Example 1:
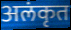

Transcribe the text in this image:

अलंकृत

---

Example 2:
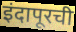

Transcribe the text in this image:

इंदापूरची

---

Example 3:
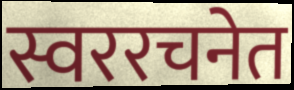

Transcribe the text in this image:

स्वररचनेत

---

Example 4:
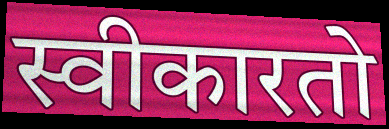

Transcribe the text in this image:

स्वीकारतो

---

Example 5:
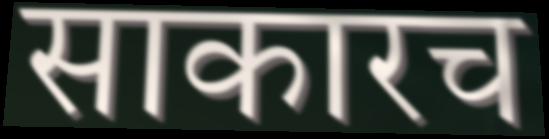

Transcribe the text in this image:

साकारच